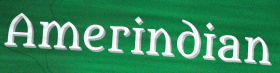
Amerindian